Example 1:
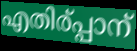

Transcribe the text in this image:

എതിര്പ്പാന്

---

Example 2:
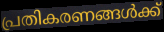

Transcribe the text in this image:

പ്രതികരണങ്ങൾക്ക്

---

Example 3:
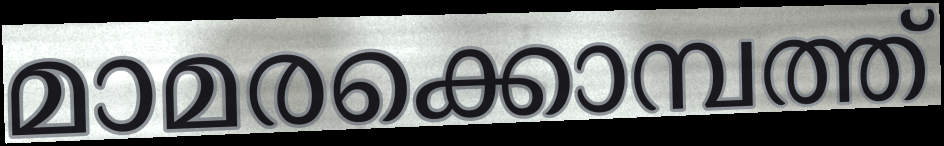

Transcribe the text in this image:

മാമരക്കൊമ്പത്ത്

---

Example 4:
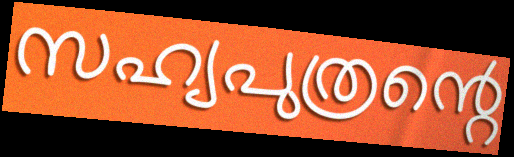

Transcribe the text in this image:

സഹ്യപുത്രന്റെ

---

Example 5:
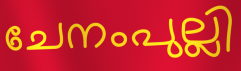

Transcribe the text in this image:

ചേനംപുല്ലി